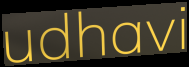
udhavi